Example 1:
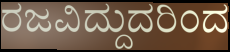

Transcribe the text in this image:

ರಜವಿದ್ದುದರಿಂದ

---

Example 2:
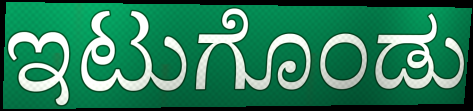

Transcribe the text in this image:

ಇಟುಗೊಂಡು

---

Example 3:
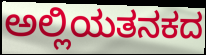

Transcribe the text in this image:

ಅಲ್ಲಿಯತನಕದ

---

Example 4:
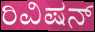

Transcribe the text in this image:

ರಿವಿಷನ್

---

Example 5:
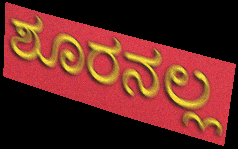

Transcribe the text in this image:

ಶೂರನಲ್ಲ